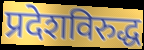
प्रदेशविरुद्ध